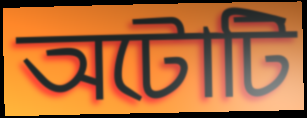
অটোটি